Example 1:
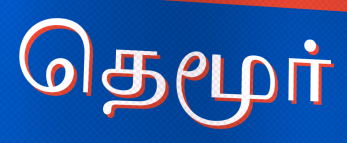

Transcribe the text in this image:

தெமூர்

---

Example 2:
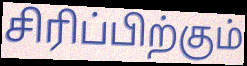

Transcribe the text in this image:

சிரிப்பிற்கும்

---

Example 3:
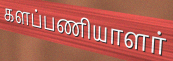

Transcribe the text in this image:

களப்பணியாளர்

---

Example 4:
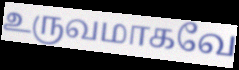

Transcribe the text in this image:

உருவமாகவே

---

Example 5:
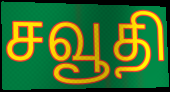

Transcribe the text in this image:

சவூதி